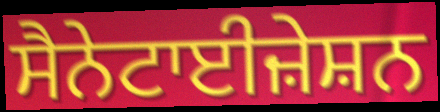
ਸੈਨੇਟਾਈਜ਼ੇਸ਼ਨ